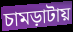
চামড়াটায়